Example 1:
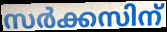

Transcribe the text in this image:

സർക്കസിന്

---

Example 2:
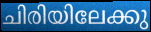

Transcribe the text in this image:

ചിരിയിലേക്കു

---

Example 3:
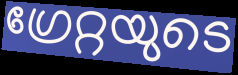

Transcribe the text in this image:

ഗ്രേറ്റയുടെ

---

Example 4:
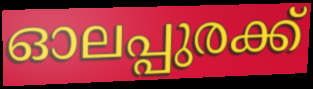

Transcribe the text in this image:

ഓലപ്പുരക്ക്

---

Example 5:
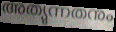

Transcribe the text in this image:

അത്യുന്നതനും